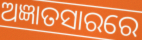
ଅଜ୍ଞାତସାରରେ